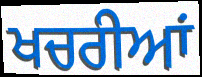
ਖਚਰੀਆਂ